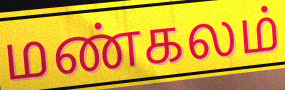
மண்கலம்